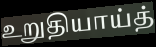
உறுதியாய்த்